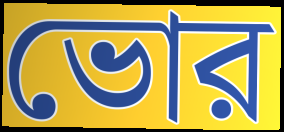
ভোর